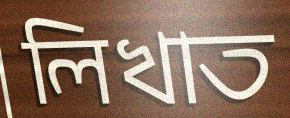
লিখাত